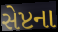
સેપ્ટના